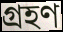
গ্রহণ